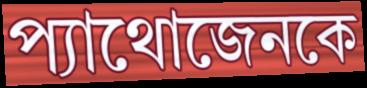
প্যাথোজেনকে